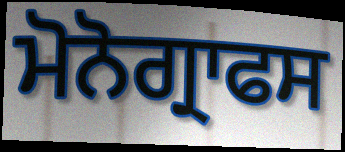
ਮੋਨੋਗ੍ਰਾਫਸ